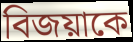
বিজয়াকে